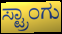
ಸ್ಟ್ರಾಂಗು